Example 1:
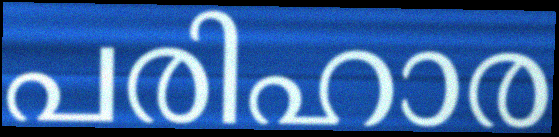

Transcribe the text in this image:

പരിഹാര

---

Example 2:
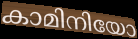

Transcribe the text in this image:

കാമിനിയോ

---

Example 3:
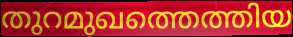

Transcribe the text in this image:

തുറമുഖത്തെത്തിയ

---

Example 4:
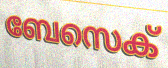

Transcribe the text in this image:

ബേസെക്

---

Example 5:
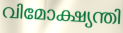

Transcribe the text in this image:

വിമോക്ഷ്യന്തി